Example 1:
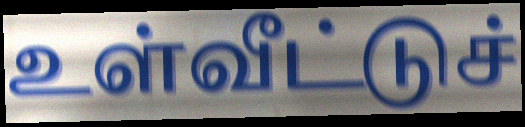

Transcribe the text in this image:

உள்வீட்டுச்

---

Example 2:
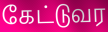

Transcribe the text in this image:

கேட்டுவர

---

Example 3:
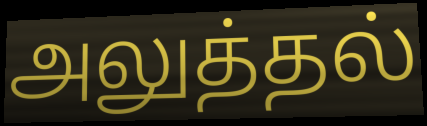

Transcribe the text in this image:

அலுத்தல்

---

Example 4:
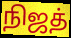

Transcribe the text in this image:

நிஜத்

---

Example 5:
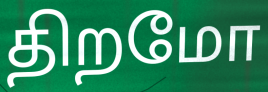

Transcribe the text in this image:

திறமோ